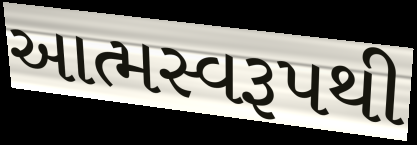
આત્મસ્વરૂપથી